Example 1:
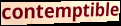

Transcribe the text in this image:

contemptible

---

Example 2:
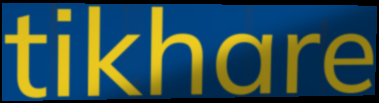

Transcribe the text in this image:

tikhare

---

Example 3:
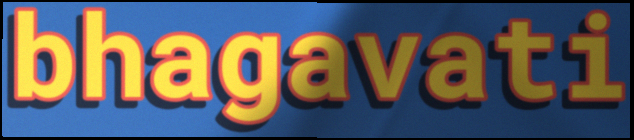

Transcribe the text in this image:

bhagavati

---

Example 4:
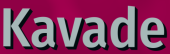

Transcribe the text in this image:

Kavade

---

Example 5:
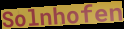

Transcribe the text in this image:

Solnhofen